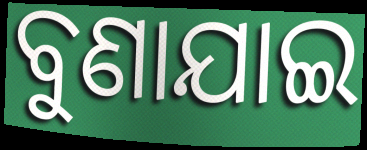
ବୁଣାଯାଇ